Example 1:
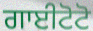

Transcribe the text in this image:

ਗਾਈਟੋਟੋ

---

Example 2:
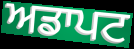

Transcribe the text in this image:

ਅਡਾਪਟ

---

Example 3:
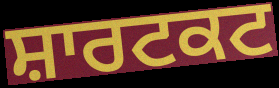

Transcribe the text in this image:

ਸ਼ਾਰਟਕਟ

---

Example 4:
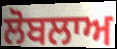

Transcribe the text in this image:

ਲੋਬਲਾਅ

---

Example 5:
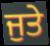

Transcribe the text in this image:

ਜੁਤੇ